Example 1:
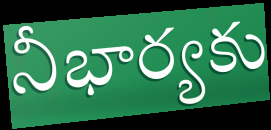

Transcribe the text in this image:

నీభార్యకు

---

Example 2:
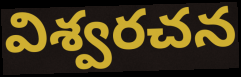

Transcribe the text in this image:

విశ్వరచన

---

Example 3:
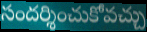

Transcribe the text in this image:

సందర్శించుకోవచ్చు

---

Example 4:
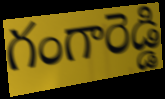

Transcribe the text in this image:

గంగారెడ్డి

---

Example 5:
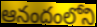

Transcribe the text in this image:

ఆనందంలోని